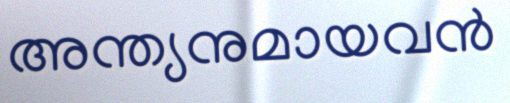
അന്ത്യനുമായവൻ